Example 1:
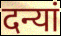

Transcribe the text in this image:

दन्यां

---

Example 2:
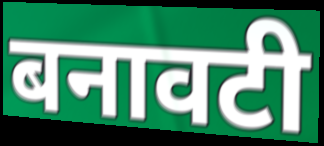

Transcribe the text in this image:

बनावटी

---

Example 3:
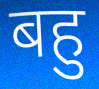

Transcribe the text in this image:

बहु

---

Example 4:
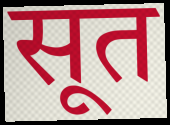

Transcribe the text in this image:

सूत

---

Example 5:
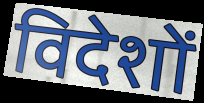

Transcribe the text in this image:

विदेशों